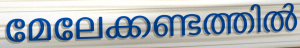
മേലേക്കണ്ടത്തിൽ